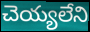
చెయ్యలేని